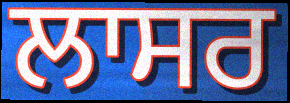
ਲਾਸਰ